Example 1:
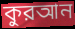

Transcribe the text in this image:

কুরআন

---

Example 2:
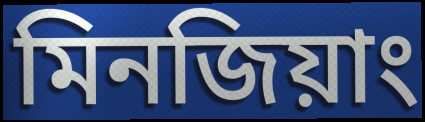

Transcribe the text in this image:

মিনজিয়াং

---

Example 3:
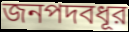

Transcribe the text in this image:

জনপদবধূর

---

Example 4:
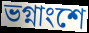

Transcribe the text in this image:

ভগ্নাংশে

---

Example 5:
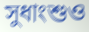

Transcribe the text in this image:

সুধাংশুও